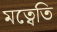
মত্বেতি